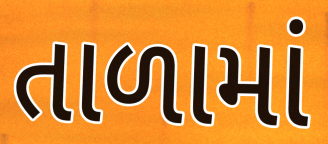
તાળામાં